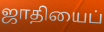
ஜாதியைப்